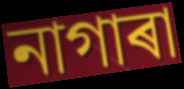
নাগাৰা